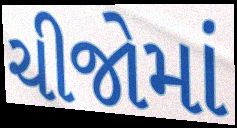
ચીજોમાં